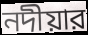
নদীয়ার